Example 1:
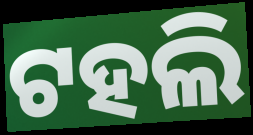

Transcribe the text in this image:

ଟହଲି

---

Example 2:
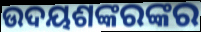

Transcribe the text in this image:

ଉଦୟଶଙ୍କରଙ୍କର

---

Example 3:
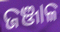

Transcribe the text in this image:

ଜଞ୍ଜାଳ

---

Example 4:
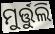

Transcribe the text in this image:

ମୁର୍ତ୍ତୁଲି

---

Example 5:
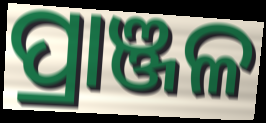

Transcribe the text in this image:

ପ୍ରାଞ୍ଜଳ